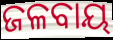
ଜଳବାୟ